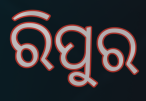
ରିପୁର